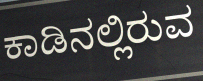
ಕಾಡಿನಲ್ಲಿರುವ